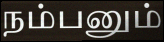
நம்பனும்